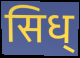
सिध्